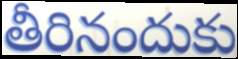
తీరినందుకు